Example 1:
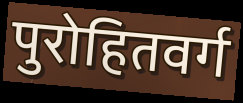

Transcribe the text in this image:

पुरोहितवर्ग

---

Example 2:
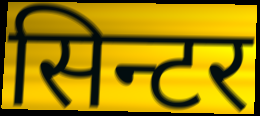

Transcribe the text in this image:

सिन्टर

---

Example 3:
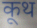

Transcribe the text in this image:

कूथ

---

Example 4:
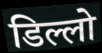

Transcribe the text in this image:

डिल्लो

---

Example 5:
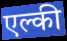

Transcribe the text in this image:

एल्की